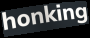
honking